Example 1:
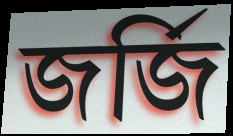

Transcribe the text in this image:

জর্জি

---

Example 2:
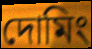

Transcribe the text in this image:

দোমিং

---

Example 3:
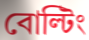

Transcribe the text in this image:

বোল্টিং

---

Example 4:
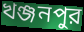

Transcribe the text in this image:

খঞ্জনপুর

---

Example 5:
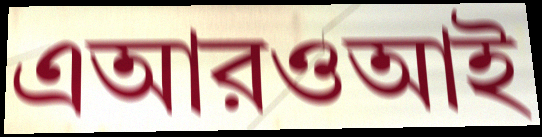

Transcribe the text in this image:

এআরওআই